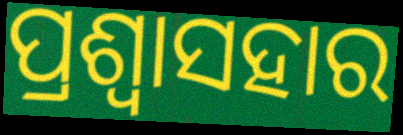
ପ୍ରଶ୍ଵାସହାର